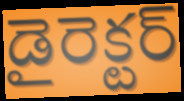
డైరెక్టర్